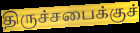
திருச்சபைக்குச்